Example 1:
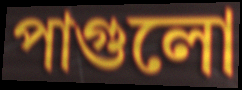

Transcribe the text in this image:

পাগুলো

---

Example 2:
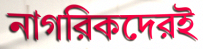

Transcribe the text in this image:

নাগরিকদেরই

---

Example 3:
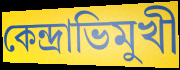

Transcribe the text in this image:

কেন্দ্রাভিমুখী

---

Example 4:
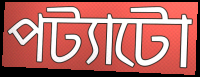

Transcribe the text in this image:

পট্যাটো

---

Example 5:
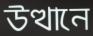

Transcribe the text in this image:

উত্থানে